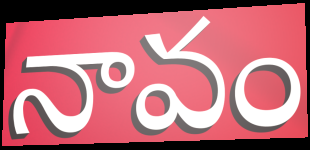
నావం